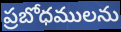
ప్రబోధములను